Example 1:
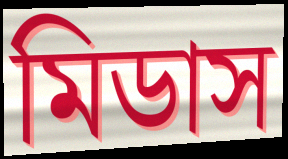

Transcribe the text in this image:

মিডাস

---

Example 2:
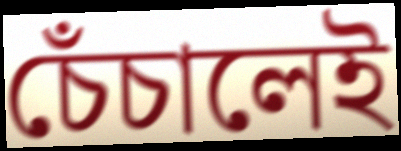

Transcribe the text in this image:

চেঁচালেই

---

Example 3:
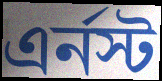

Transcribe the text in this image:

এর্নস্ট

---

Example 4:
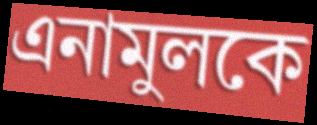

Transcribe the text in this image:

এনামুলকে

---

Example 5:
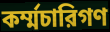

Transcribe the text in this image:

কর্ম্মচারিগণ